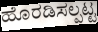
ಹೊರಡಿಸಲ್ಪಟ್ಟ